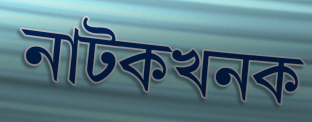
নাটকখনক